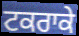
ਟਕਰਾਕੇ